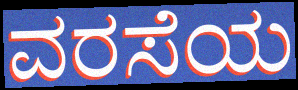
ವರಸೆಯ